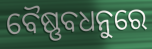
ବୈଷ୍ଣବଧନୁରେ